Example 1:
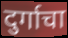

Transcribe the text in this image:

दुर्गाचा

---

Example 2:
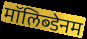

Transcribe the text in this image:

मॉलिब्डेनम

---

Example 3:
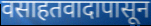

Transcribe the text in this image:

वसाहतवादापासून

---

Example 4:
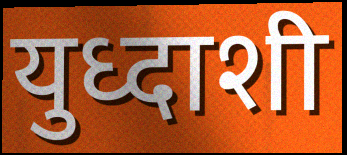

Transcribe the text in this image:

युध्दाशी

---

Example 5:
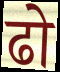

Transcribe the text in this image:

ढो